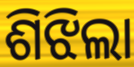
ଶିଝିଲା